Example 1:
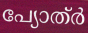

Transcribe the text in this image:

പ്യോത്ർ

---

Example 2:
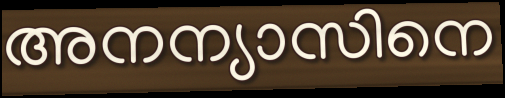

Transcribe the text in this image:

അനന്യാസിനെ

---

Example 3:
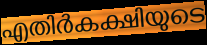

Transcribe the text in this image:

എതിർകക്ഷിയുടെ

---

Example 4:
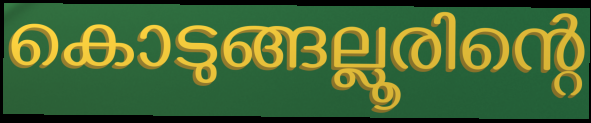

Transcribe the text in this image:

കൊടുങ്ങല്ലൂരിന്റെ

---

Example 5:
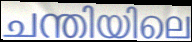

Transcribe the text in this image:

ചന്തിയിലെ